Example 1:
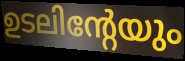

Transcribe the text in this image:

ഉടലിന്റേയും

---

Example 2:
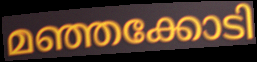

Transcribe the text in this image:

മഞ്ഞക്കോടി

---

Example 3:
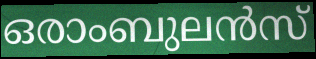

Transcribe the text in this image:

ഒരാംബുലൻസ്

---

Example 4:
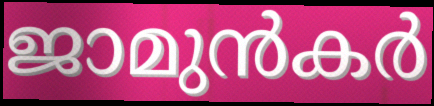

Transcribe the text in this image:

ജാമുൻകർ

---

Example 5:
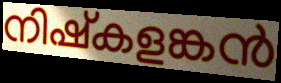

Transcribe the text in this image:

നിഷ്കളങ്കൻ